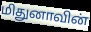
மிதுனாவின்